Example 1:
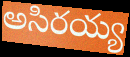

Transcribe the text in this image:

అసిరయ్య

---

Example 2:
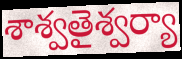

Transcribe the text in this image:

శాశ్వతైశ్వర్యా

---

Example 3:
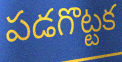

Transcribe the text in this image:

పడగొట్టక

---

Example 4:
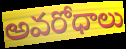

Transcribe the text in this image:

అవరోధాలు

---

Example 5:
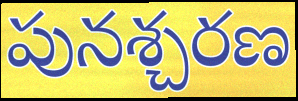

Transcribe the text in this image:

పునశ్చరణ